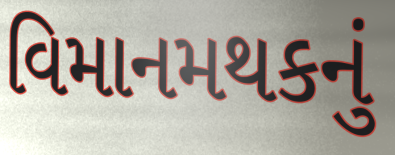
વિમાનમથકનું